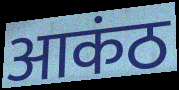
आकंठ